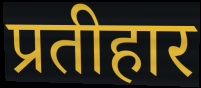
प्रतीहार